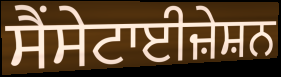
ਸੈਂਸੇਟਾਈਜ਼ੇਸ਼ਨ